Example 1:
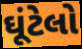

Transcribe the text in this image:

ઘૂંટેલો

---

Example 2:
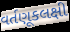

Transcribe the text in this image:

વર્તણૂકલક્ષી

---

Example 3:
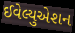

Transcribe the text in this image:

ઈવેલ્યુએશન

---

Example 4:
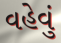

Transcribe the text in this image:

વહેવું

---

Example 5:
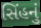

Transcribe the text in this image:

સિંહનું